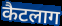
कैटलाग